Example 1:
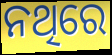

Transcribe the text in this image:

ନଥିରେ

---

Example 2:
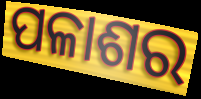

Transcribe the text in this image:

ପଳାଶର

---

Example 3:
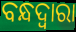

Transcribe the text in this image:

ବନ୍ଧଦ୍ବାରା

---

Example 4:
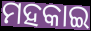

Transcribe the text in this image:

ମହକାଇ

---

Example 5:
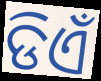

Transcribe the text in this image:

ଡିଏଁ